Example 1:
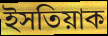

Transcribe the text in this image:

ইসতিয়াক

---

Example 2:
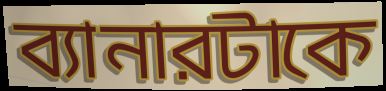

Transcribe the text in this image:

ব্যানারটাকে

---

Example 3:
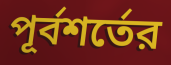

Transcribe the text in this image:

পূর্বশর্তের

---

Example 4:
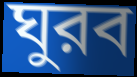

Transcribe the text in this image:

ঘুরব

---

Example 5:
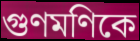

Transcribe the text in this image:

গুণমণিকে